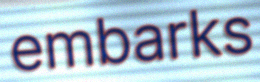
embarks